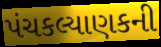
પંચકલ્યાણકની